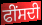
ਫੀਂਸਦੀ